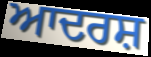
ਆਦਰਸ਼